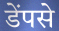
डेंपसे